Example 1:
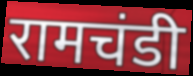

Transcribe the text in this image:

रामचंडी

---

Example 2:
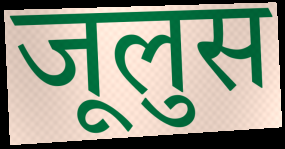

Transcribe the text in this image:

जूलुस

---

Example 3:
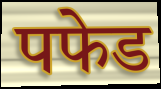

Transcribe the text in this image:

पफेड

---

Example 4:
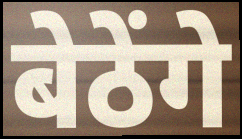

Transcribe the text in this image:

बेठेंगे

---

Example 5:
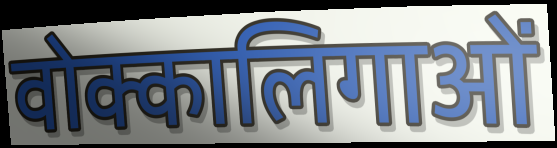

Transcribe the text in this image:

वोक्कालिगाओं